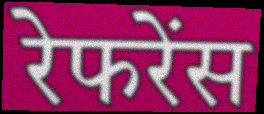
रेफरेंस